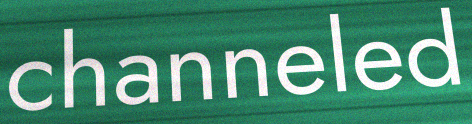
channeled